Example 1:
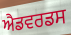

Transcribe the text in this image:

ਐਡਵਰਡਸ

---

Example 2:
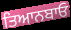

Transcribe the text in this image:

ਤਿਆਨਬਾਓ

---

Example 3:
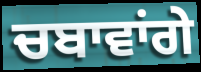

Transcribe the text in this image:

ਚਬਾਵਾਂਗੇ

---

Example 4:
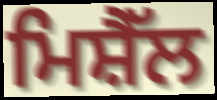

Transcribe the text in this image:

ਮਿਸ਼ੈੱਲ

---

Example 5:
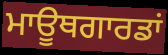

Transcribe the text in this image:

ਮਾਊਥਗਾਰਡਾਂ